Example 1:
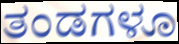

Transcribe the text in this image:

ತಂಡಗಳೂ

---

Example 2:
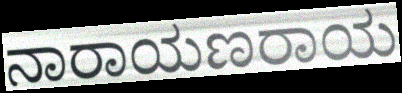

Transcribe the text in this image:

ನಾರಾಯಣರಾಯ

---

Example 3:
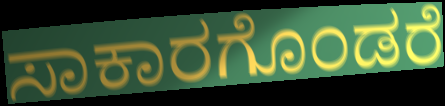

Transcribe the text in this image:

ಸಾಕಾರಗೊಂಡರೆ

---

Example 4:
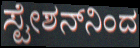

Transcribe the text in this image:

ಸ್ಟೇಶನ್‌ನಿಂದ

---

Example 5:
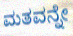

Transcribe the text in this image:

ಮತವನ್ನೇ